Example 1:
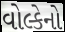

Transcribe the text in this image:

વોલ્કેનો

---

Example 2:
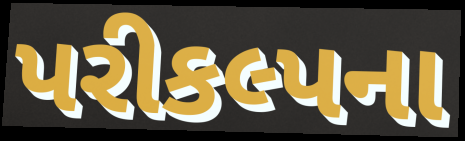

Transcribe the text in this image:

પરીકલ્પના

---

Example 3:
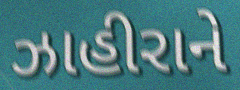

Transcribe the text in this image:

ઝાહીરાને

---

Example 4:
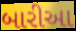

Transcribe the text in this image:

બારીઆ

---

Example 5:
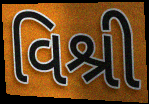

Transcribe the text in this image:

વિશ્રી